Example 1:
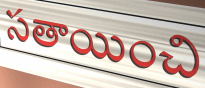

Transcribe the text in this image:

సతాయించి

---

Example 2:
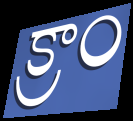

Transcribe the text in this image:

క్రాం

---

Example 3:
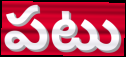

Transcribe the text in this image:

పటు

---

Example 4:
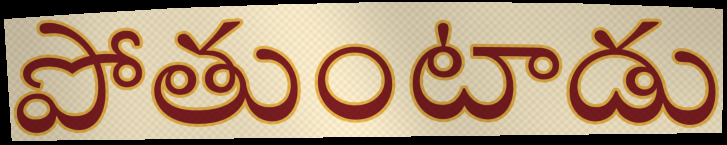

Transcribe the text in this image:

పోతుంటాడు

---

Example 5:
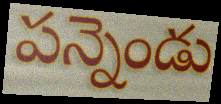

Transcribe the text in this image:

పన్నెండు